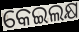
କେଇଲକ୍ଷ